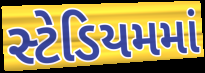
સ્ટેડિયમમાં